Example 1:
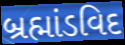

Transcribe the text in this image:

બ્રહ્માંડવિદ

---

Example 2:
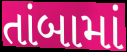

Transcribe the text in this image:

તાંબામાં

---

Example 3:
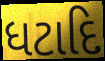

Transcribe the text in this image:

ધટાદિ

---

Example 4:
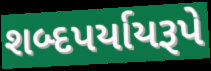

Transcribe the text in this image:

શબ્દપર્યાયરૂપે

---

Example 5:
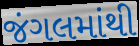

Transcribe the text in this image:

જંગલમાંથી